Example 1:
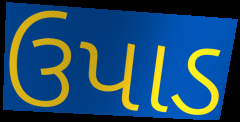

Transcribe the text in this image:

ઉપાડ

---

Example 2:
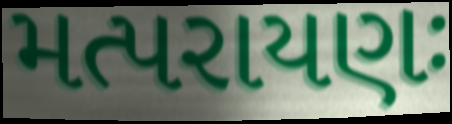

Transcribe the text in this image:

મત્પરાયણઃ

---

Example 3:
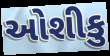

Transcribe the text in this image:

ઓશીકુ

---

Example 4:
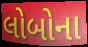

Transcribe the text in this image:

લોબોના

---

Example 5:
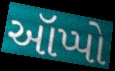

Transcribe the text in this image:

ઑપ્પો